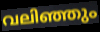
വലിഞ്ഞും